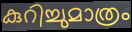
കുറിച്ചുമാത്രം